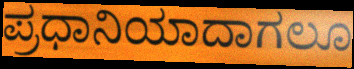
ಪ್ರಧಾನಿಯಾದಾಗಲೂ